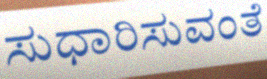
ಸುಧಾರಿಸುವಂತೆ